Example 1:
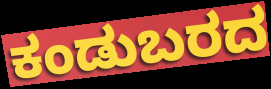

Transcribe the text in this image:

ಕಂಡುಬರದ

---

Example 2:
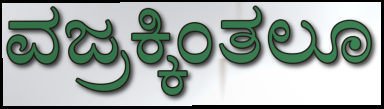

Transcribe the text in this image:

ವಜ್ರಕ್ಕಿಂತಲೂ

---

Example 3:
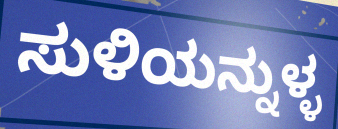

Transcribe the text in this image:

ಸುಳಿಯನ್ನುಳ್ಳ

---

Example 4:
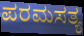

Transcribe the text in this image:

ಪರಮಸತ್ಯ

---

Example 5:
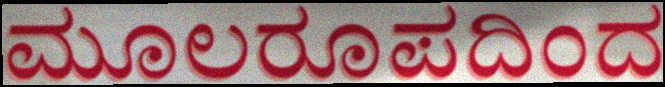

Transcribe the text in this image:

ಮೂಲರೂಪದಿಂದ